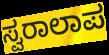
ಸ್ವರಾಲಾಪ